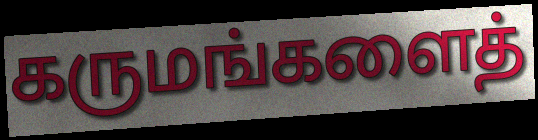
கருமங்களைத்